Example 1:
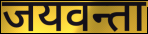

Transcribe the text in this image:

जयवन्ता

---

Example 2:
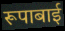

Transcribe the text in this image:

रूपाबाई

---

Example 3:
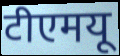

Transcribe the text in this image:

टीएमयू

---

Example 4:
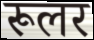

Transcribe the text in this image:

रूलर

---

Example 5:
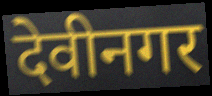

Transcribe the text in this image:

देवीनगर